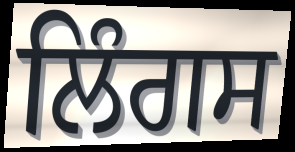
ਲਿੰਗਸ